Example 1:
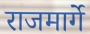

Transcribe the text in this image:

राजमार्गे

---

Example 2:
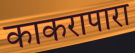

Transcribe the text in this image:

काकरापारा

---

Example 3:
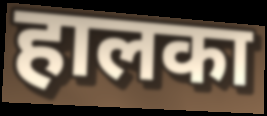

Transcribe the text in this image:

हालका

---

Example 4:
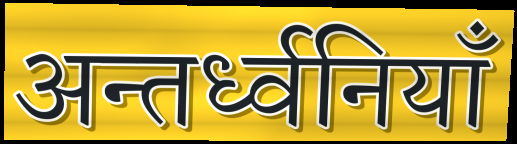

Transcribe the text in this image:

अन्तर्ध्वनियाँ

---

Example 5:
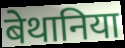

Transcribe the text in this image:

बेथानिया